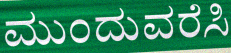
ಮುಂದುವರೆಸಿ